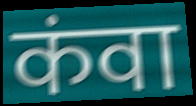
कंवा